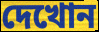
দেখোন